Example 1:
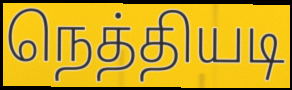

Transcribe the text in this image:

நெத்தியடி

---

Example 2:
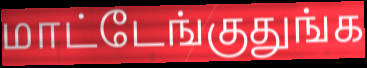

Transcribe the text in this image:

மாட்டேங்குதுங்க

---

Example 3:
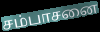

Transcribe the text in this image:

சம்பாசனை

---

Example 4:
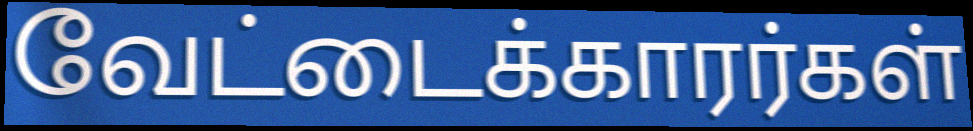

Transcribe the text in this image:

வேட்டைக்காரர்கள்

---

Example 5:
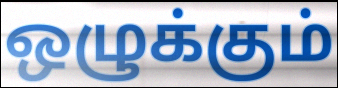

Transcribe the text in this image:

ஒழுக்கும்